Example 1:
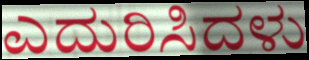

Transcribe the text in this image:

ಎದುರಿಸಿದಳು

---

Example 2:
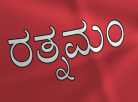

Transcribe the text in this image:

ರತ್ನಮಂ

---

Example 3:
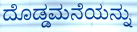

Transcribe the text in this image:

ದೊಡ್ಡಮನೆಯನ್ನು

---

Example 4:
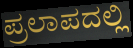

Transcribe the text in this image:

ಪ್ರಲಾಪದಲ್ಲಿ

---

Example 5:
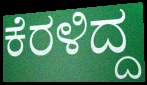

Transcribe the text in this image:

ಕೆರಳಿದ್ದ